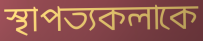
স্থাপত্যকলাকে